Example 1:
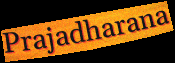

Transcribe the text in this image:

Prajadharana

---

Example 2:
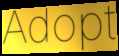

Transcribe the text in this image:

Adopt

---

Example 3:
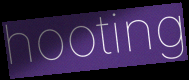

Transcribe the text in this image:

hooting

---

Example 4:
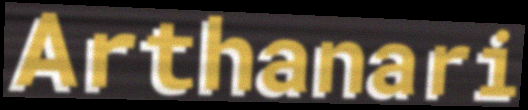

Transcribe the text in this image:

Arthanari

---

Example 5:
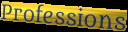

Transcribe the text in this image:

Professions